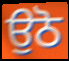
ਉਠੋ